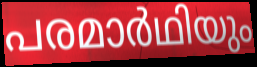
പരമാർഥിയും